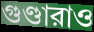
গুণ্ডারাও